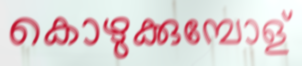
കൊഴുക്കുമ്പോള്